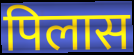
पिलास